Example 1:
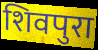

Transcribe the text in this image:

शिवपुरा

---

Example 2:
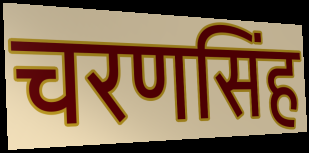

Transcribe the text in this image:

चरणसिंह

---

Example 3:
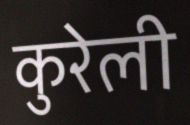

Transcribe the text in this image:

कुरेली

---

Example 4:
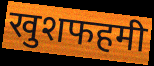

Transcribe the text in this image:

खुशफहमी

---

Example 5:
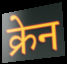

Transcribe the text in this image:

क्रेन